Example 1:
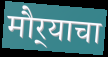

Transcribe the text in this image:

मौर्याचा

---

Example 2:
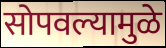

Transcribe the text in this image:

सोपवल्यामुळे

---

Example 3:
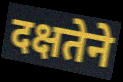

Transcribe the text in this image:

दक्षतेने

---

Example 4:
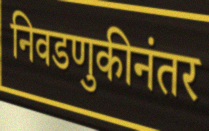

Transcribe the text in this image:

निवडणुकीनंतर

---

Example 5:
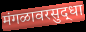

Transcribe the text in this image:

मंगळावरसुद्धा